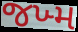
જખ્મ